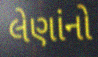
લેણાંનો